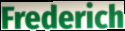
Frederich